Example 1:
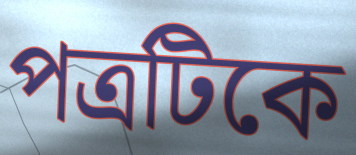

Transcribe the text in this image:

পত্রটিকে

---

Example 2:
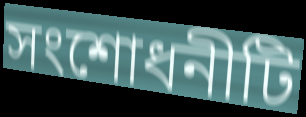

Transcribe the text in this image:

সংশোধনীটি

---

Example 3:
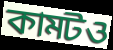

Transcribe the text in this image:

কামটও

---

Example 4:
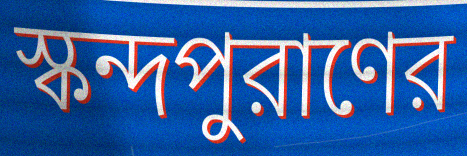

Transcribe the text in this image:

স্কন্দপুরাণের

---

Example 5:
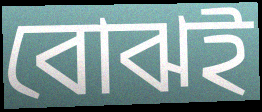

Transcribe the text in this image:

বোঝই